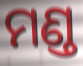
ମଣ୍ଡ